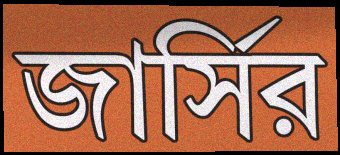
জার্সির